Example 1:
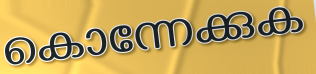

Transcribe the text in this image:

കൊന്നേക്കുക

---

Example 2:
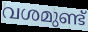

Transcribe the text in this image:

വശമുണ്ട്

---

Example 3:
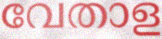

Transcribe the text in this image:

വേതാള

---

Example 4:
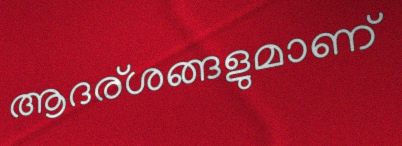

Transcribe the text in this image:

ആദര്ശങ്ങളുമാണ്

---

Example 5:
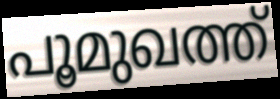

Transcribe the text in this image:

പൂമുഖത്ത്